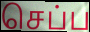
செப்ப